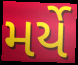
મર્યે